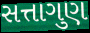
સત્તાગુણ